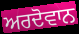
ਅਰਦੋਵਾਨ